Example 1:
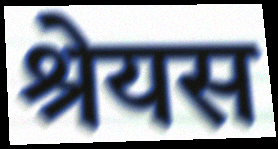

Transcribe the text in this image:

श्रेयस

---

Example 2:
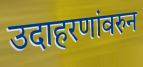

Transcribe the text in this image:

उदाहरणांवरुन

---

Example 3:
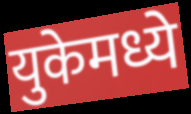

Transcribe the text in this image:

युकेमध्ये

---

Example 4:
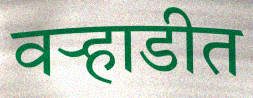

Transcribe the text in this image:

वऱ्हाडीत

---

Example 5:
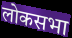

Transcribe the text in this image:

लोकसभा